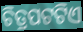
ଚିତ୍ରପଟଟିଏ